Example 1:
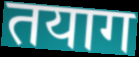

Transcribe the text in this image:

तयाग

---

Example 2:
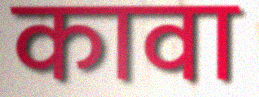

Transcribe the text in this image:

कावा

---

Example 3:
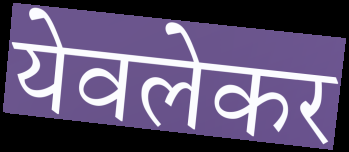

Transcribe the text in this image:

येवलेकर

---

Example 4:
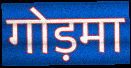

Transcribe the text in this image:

गोड़मा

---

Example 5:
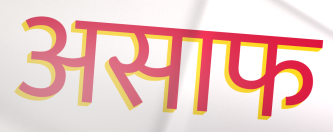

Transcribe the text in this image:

असाफ